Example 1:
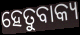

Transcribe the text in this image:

ହେତୁବାକ୍ୟ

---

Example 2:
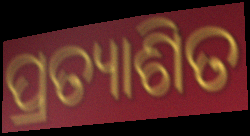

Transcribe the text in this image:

ପ୍ରତ୍ୟାଶିତ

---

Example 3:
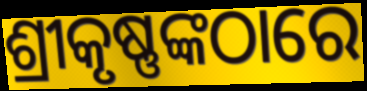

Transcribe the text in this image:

ଶ୍ରୀକୃଷ୍ଣଙ୍କଠାରେ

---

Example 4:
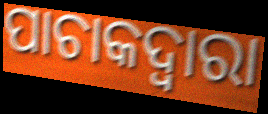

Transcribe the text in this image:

ପାଚାକଦ୍ଵାରା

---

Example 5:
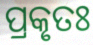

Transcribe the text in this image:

ପ୍ରକୃତଃ